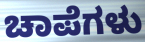
ಚಾಪೆಗಳು